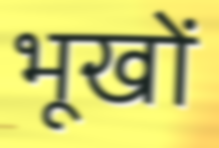
भूखों